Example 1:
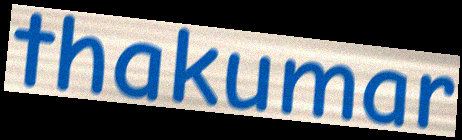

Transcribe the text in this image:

thakumar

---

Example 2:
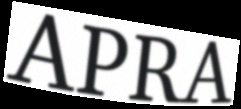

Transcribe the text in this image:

APRA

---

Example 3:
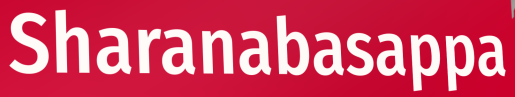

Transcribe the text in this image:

Sharanabasappa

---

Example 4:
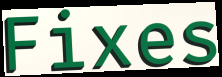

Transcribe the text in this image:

Fixes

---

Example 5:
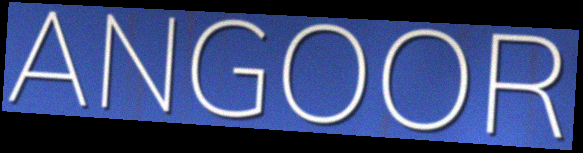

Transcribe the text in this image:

ANGOOR